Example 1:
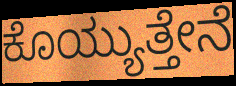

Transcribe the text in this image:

ಕೊಯ್ಯುತ್ತೇನೆ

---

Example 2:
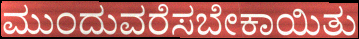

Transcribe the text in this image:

ಮುಂದುವರೆಸಬೇಕಾಯಿತು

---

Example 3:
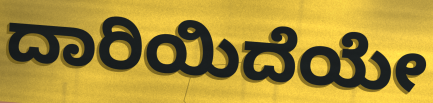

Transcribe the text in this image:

ದಾರಿಯಿದೆಯೇ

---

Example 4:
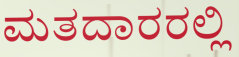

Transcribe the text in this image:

ಮತದಾರರಲ್ಲಿ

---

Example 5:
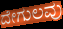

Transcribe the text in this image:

ದೇಗುಲವು